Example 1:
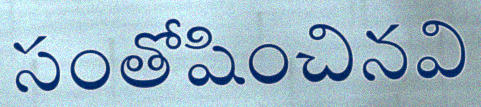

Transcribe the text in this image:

సంతోషించినవి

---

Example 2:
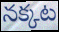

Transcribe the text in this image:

నక్కట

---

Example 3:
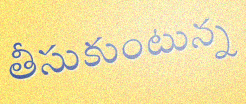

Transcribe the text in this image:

తీసుకుంటున్న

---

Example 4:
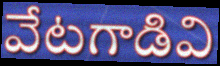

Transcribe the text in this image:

వేటగాడివి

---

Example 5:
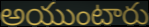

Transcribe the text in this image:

అయుంటారు